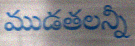
ముడతలన్నీ